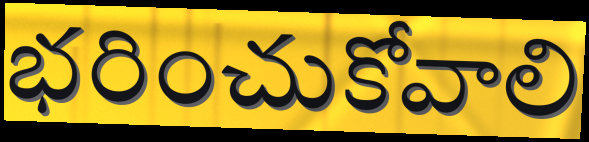
భరించుకోవాలి